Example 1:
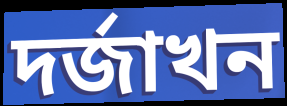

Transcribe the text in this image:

দৰ্জাখন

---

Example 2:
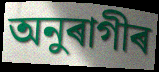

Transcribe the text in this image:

অনুৰাগীৰ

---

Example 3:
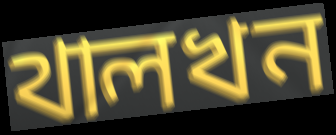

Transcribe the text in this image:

থালখন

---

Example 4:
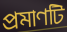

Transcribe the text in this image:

প্ৰমাণটি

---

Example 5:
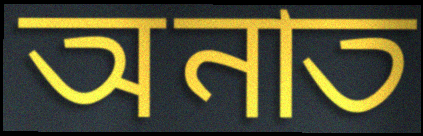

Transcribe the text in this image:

অনাত